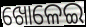
ଖୋଳେଇ